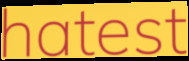
hatest